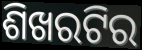
ଶିଖରଟିର